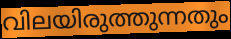
വിലയിരുത്തുന്നതും